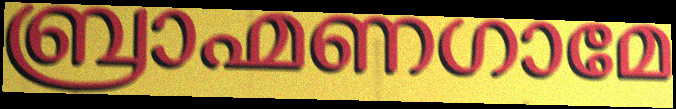
ബ്രാഹ്മണഗാമേ